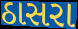
ઠાસરા